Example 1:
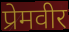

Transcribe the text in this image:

प्रेमवीर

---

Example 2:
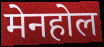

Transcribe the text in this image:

मेनहोल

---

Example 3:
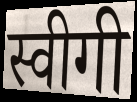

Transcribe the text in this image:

स्वीगी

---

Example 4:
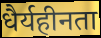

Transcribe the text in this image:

धैर्यहीनता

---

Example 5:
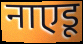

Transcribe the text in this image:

नाएडू